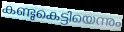
കണ്ടുകെട്ടിയെന്നും